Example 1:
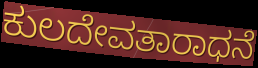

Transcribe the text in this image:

ಕುಲದೇವತಾರಾಧನೆ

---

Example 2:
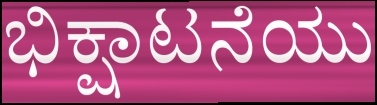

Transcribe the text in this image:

ಭಿಕ್ಷಾಟನೆಯು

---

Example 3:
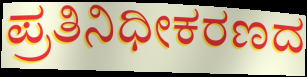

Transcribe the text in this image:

ಪ್ರತಿನಿಧೀಕರಣದ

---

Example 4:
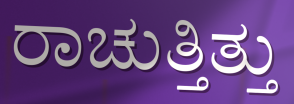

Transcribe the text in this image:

ರಾಚುತ್ತಿತ್ತು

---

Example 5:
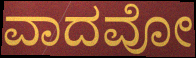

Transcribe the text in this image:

ವಾದವೋ